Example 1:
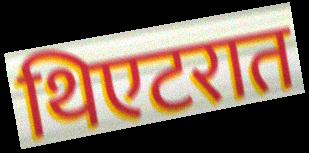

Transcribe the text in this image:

थिएटरात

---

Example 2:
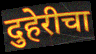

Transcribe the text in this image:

दुहेरीचा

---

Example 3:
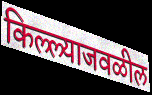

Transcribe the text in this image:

किल्ल्याजवळील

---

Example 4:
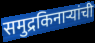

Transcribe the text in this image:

समुद्रकिनाऱ्यांची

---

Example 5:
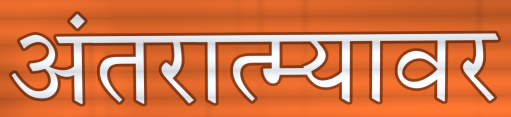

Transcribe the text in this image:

अंतरात्म्यावर